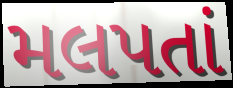
મલપતાં